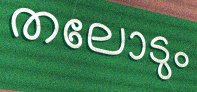
തലോടും